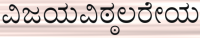
ವಿಜಯವಿಠ್ಠಲರೇಯ